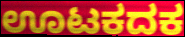
ಊಟಕದಕ